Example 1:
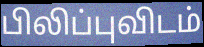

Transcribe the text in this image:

பிலிப்புவிடம்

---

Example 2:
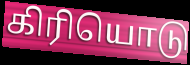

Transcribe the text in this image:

கிரியொடு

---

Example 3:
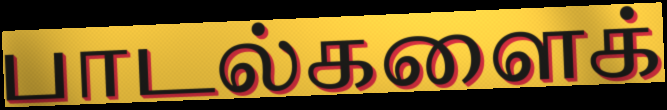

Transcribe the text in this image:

பாடல்களைக்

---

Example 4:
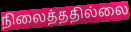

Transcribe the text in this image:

நிலைத்ததில்லை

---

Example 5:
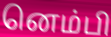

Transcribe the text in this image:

னெம்பி